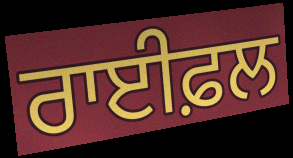
ਰਾਈਫ਼ਲ